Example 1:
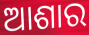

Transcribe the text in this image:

ଆଶାର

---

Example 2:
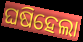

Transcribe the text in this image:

ଘଷିହେଲା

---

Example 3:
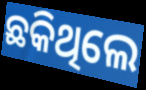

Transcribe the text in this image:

ଛକିଥିଲେ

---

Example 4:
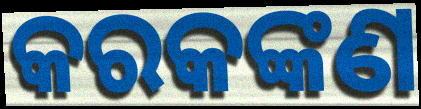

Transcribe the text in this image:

କରକଙ୍କଣ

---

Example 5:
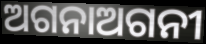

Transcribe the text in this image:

ଅଗନାଅଗନୀ